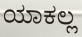
ಯಾಕಲ್ಲ